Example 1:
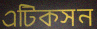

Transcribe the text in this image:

এটিকসন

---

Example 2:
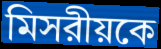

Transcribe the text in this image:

মিসরীয়কে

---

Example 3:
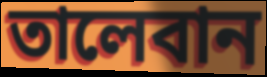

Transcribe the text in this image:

তালেবান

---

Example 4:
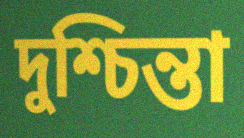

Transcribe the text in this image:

দুশ্চিন্তা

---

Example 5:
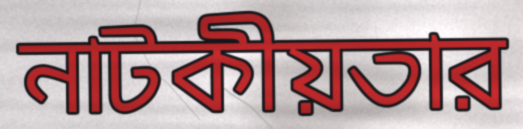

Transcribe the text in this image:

নাটকীয়তার